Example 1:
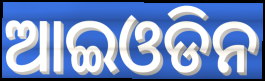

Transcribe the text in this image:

ଆଇଓଡିନ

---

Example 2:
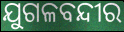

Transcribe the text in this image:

ଯୁଗଳବନ୍ଦୀର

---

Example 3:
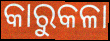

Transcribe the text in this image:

କାରୁକଳା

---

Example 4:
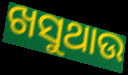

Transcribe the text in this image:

ଖସୁଥାଉ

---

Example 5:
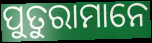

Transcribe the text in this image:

ପୁତୁରାମାନେ